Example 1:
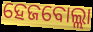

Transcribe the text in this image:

ହେଜବୋଲ୍ଲା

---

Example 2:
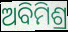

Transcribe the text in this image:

ଅବିମିଶ୍ର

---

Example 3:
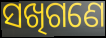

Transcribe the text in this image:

ସଖିଗଣେ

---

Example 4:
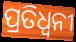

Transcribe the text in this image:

ପ୍ରତିଧ୍ଵନୀ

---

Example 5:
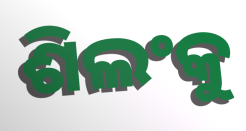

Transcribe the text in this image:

ଶିଲଂକୁ